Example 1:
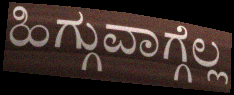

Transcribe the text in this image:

ಹಿಗ್ಗುವಾಗ್ಗೆಲ್ಲ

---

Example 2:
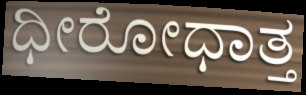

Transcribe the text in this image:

ಧೀರೋಧಾತ್ತ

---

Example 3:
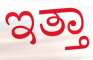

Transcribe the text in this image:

ಇತ್ತಾ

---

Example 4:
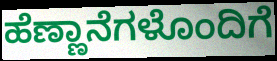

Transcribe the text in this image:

ಹೆಣ್ಣಾನೆಗಳೊಂದಿಗೆ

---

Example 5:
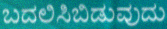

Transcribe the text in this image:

ಬದಲಿಸಿಬಿಡುವುದು